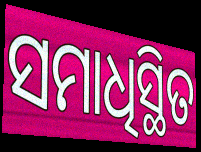
ସମାଧିସ୍ଥିତ